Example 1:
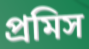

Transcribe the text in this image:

প্রমিস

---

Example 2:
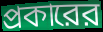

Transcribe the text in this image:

প্রকারের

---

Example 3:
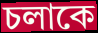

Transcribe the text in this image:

চলাকে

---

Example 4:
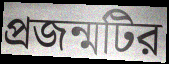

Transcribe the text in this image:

প্রজন্মটির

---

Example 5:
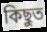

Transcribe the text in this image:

কিছুত